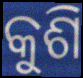
କୁଶି